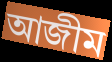
আজীম